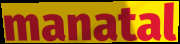
manatal